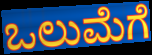
ಒಲುಮೆಗೆ